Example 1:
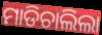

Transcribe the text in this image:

ମାଡିଚାଲିଲା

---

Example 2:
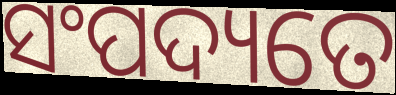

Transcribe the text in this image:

ସଂପଦ୍ୟତେ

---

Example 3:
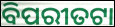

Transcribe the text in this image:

ବିପରୀତଟା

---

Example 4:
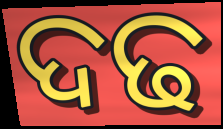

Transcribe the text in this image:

ଦଢ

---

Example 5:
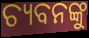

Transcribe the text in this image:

ଚ୍ୟବନଙ୍କୁ